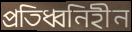
প্রতিধ্বনিহীন